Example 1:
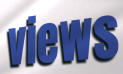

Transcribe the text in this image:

views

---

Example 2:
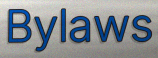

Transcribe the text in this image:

Bylaws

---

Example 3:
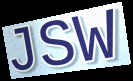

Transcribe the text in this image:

JSW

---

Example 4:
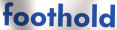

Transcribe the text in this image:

foothold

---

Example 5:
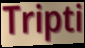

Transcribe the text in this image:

Tripti